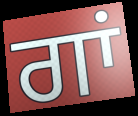
ਗਾਂ